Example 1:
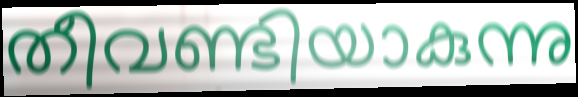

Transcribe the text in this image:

തീവണ്ടിയാകുന്നു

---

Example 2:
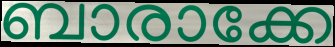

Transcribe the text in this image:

ബാരാക്കേ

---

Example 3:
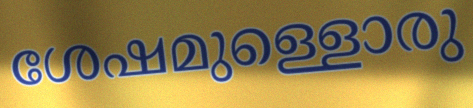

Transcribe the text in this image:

ശേഷമുള്ളൊരു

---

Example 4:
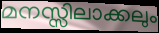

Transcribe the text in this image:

മനസ്സിലാക്കലും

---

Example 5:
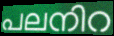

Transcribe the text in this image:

പലനിറ